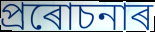
প্ৰৰোচনাৰ